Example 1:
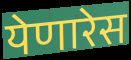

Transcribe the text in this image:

येणारेस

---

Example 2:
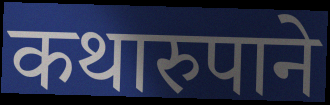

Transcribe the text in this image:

कथारुपाने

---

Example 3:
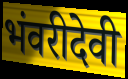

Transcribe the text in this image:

भंवरीदेवी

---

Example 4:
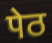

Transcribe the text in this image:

पेठ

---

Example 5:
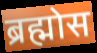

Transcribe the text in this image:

ब्रह्मोस